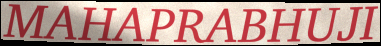
MAHAPRABHUJI